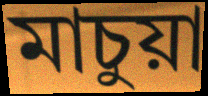
মাচুয়া